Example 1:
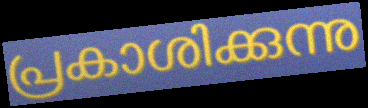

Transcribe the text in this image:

പ്രകാശിക്കുന്നു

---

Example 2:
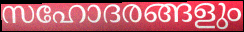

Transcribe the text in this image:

സഹോദരങ്ങളും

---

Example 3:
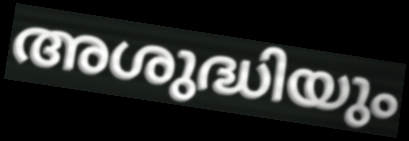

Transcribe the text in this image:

അശുദ്ധിയും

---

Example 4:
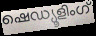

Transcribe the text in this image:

ഷെഡ്യൂളിംഗ്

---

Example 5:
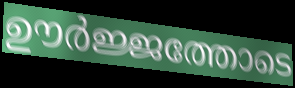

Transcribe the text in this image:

ഊർജ്ജത്തോടെ